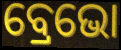
ବ୍ରେଭୋ